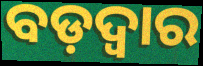
ବଡ଼ଦ୍ୱାର